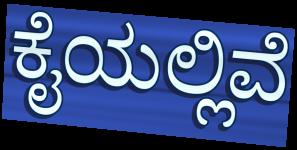
ಕೈಯಲ್ಲಿವೆ